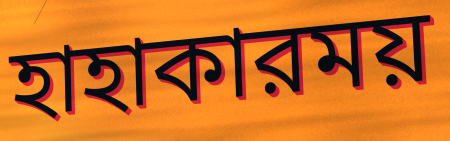
হাহাকারময়